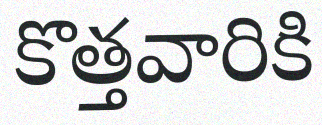
కొత్తవారికి